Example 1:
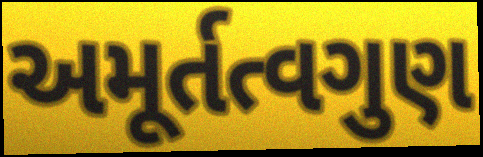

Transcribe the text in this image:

અમૂર્તત્વગુણ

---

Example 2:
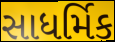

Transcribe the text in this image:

સાધર્મિક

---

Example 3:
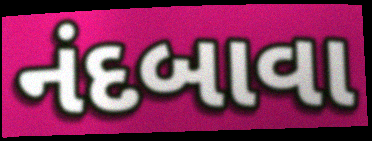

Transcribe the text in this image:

નંદબાવા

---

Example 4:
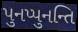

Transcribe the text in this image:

પુનપ્પુનન્તિ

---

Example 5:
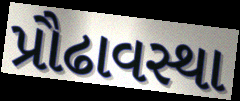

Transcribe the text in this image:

પ્રૌઢાવસ્થા